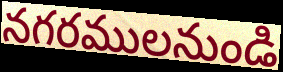
నగరములనుండి